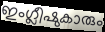
ഇംഗ്ലീഷുകാരും